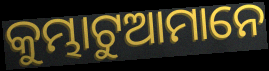
କୁମ୍ଭାଟୁଆମାନେ